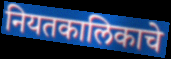
नियतकालिकाचे